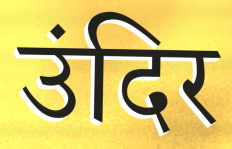
उंदिर